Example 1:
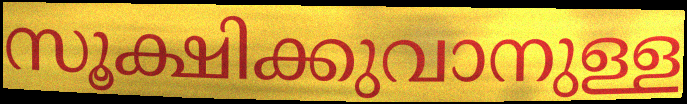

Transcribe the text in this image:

സൂക്ഷിക്കുവാനുള്ള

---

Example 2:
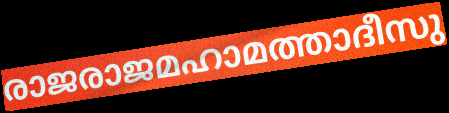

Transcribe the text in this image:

രാജരാജമഹാമത്താദീസു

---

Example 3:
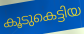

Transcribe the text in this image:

കൂടുകെട്ടിയ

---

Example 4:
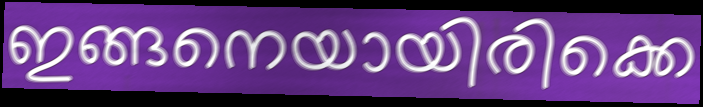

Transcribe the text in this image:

ഇങ്ങനെയായിരിക്കെ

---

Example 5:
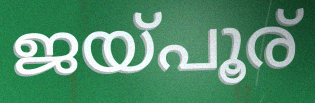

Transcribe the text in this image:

ജയ്പൂര്